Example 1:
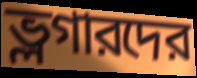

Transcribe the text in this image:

ভ্লগারদের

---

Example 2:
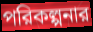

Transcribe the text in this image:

পরিকল্পনার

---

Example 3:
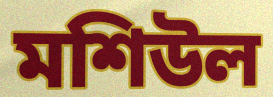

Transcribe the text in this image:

মশিউল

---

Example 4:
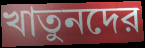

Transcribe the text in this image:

খাতুনদের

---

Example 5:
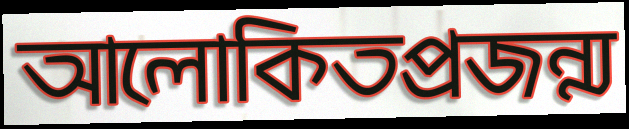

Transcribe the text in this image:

আলোকিতপ্রজন্ম